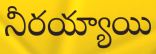
నీరయ్యాయి